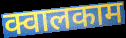
क्वालकाम